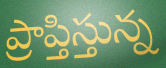
ప్రాప్తిస్తున్న